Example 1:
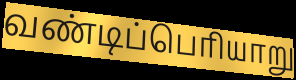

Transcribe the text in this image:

வண்டிப்பெரியாறு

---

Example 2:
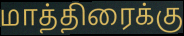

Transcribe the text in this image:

மாத்திரைக்கு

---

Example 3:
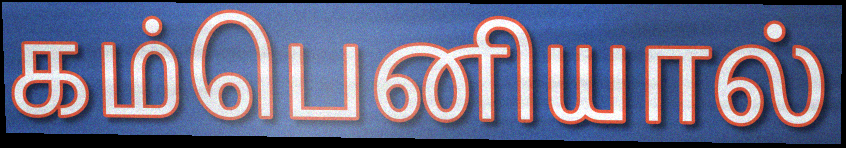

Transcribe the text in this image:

கம்பெனியால்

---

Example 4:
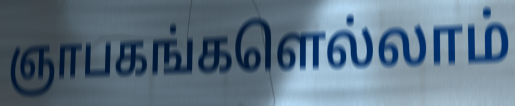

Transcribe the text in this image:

ஞாபகங்களெல்லாம்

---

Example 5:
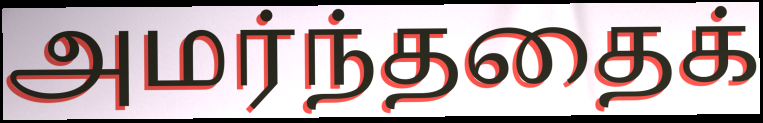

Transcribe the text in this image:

அமர்ந்ததைக்